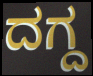
ದಗ್ದ